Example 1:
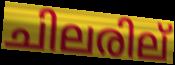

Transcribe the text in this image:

ചിലരില്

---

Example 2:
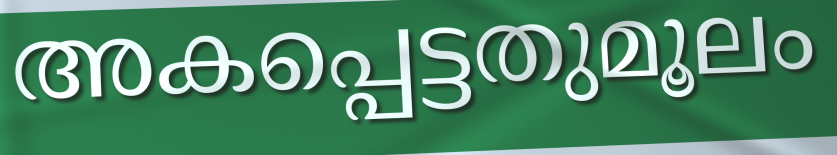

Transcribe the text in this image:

അകപ്പെട്ടതുമൂലം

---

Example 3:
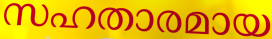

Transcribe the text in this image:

സഹതാരമായ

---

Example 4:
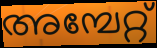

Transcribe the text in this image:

അമ്പേറ്റ്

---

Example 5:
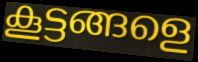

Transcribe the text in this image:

കൂട്ടങ്ങളെ